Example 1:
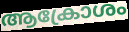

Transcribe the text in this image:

ആക്രോശം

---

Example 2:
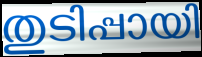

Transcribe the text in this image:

തുടിപ്പായി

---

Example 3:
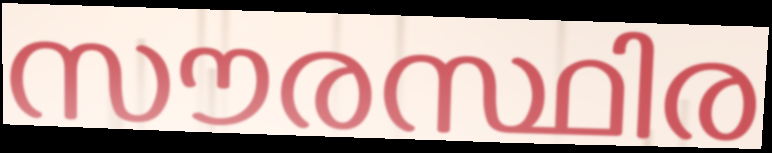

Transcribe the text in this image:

സൗരസ്ഥിര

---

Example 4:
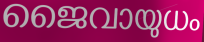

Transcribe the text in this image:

ജൈവായുധം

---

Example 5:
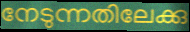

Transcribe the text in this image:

നേടുന്നതിലേക്കു